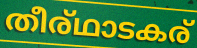
തീര്ഥാടകര്